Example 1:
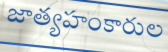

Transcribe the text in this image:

జాత్యహంకారుల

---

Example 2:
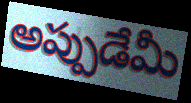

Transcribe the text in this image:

అప్పుడేమీ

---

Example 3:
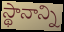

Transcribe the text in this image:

స్థానాన్ని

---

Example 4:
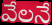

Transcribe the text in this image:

వేలనే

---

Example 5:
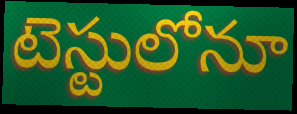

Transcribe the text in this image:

టెస్టులోనూ